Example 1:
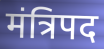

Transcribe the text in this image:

मंत्रिपद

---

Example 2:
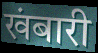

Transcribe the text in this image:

खंबारी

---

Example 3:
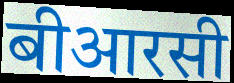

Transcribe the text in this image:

बीआरसी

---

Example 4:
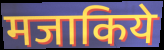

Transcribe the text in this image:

मजाकिये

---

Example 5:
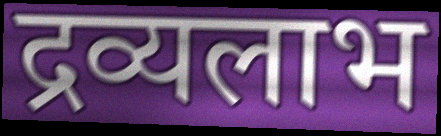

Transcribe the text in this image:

द्रव्यलाभ